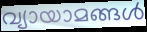
വ്യായാമങ്ങൾ